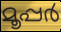
മൂപ്പർ